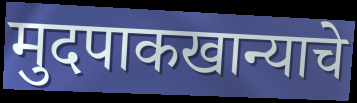
मुदपाकखान्याचे